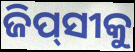
ଜିପ୍‌ସୀକୁ